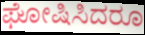
ಘೋಷಿಸಿದರೂ